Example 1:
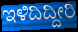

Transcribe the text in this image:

ಇಳಿದಿದ್ದೀರಿ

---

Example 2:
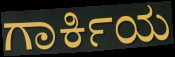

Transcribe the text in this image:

ಗಾರ್ಕಿಯ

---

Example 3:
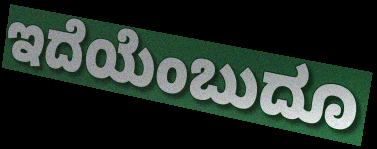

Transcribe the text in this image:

ಇದೆಯೆಂಬುದೂ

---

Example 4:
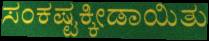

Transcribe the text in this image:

ಸಂಕಷ್ಟಕ್ಕೀಡಾಯಿತು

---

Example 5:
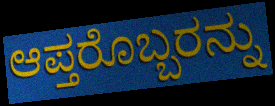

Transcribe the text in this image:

ಆಪ್ತರೊಬ್ಬರನ್ನು